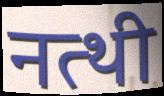
नत्‍थी